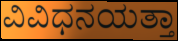
ವಿವಿಧನಯತ್ತಾ